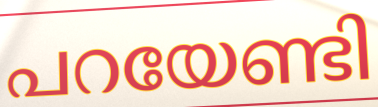
പറയേണ്ടി